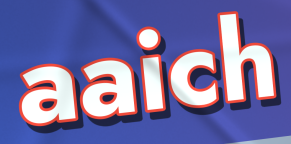
aaich